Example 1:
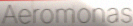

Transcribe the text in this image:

Aeromonas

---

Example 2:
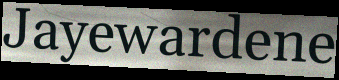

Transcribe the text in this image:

Jayewardene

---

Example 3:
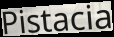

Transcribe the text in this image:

Pistacia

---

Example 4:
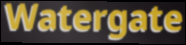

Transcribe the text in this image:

Watergate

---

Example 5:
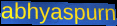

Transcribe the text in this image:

abhyaspurn